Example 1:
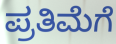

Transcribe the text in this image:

ಪ್ರತಿಮೆಗೆ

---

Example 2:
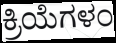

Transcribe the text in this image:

ಕ್ರಿಯೆಗಳಂ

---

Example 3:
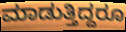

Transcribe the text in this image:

ಮಾಡುತ್ತಿದ್ದರೂ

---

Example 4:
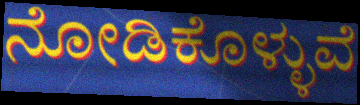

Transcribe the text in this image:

ನೋಡಿಕೊಳ್ಳುವೆ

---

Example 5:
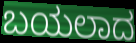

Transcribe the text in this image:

ಬಯಲಾದ